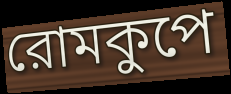
রোমকুপে